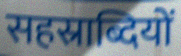
सहस्राब्दियों